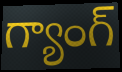
గ్యాంగ్